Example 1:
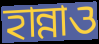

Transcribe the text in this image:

হান্নাও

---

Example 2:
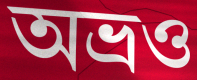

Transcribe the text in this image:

অভ্রও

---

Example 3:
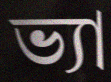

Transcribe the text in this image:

ভ্যা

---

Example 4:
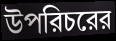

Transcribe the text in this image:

উপরিচরের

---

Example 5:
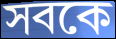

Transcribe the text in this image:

সবকে